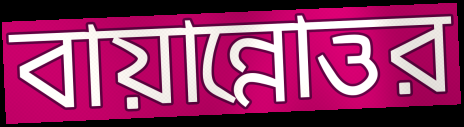
বায়ান্নোত্তর